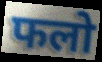
फलो